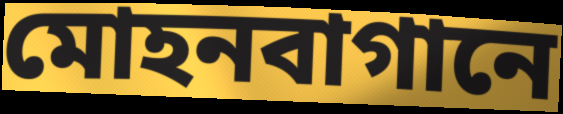
মোহনবাগানে